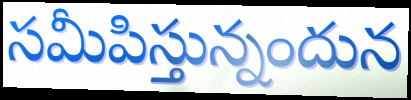
సమీపిస్తున్నందున